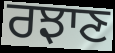
ਰਝਾਣ